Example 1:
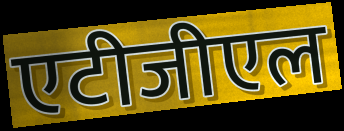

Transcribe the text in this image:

एटीजीएल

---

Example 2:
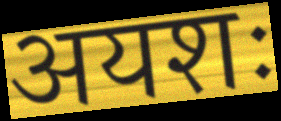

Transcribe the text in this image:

अयशः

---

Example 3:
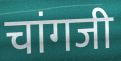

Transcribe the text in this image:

चांगजी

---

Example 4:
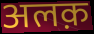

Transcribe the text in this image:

अलक़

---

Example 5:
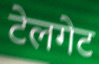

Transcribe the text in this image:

टेलगेट